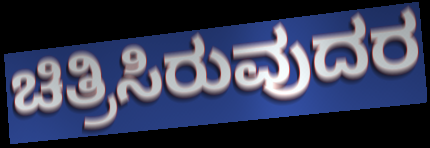
ಚಿತ್ರಿಸಿರುವುದರ